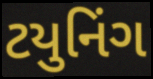
ટયુનિંગ